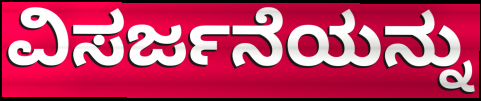
ವಿಸರ್ಜನೆಯನ್ನು